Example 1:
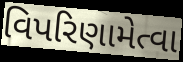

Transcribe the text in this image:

વિપરિણામેત્વા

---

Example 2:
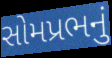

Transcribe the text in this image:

સોમપ્રભનું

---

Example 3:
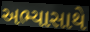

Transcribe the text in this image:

અભ્યાસાથે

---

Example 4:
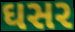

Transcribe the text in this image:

ઘસર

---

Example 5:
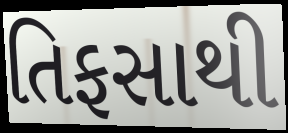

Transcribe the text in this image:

તિફસાથી